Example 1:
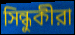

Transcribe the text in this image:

সিন্ধুকীরা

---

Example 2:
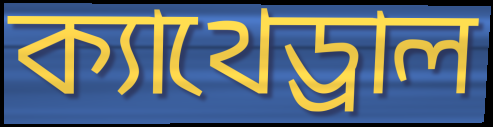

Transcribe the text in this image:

ক্যাথেড্রাল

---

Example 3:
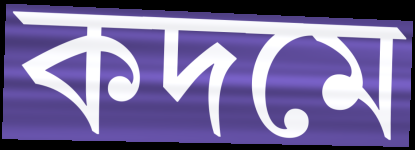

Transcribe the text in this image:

কদমে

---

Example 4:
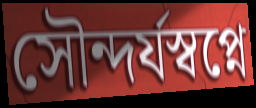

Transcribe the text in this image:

সৌন্দর্যস্বপ্নে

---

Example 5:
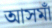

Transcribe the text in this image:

আসমাঁ